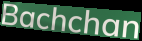
Bachchan